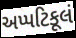
અપ્પટિકૂલં